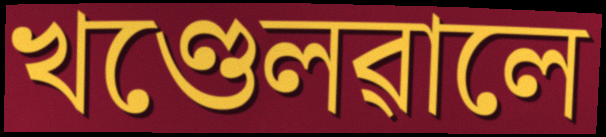
খণ্ডেলৱালে